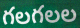
గలగలల